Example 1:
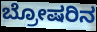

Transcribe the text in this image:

ಬ್ರೋಷರಿನ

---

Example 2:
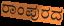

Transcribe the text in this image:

ರಾಂಪುರದ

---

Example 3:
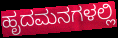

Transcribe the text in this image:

ಹೃದಮನಗಳಲ್ಲಿ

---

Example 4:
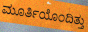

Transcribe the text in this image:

ಮೂರ್ತಿಯೊಂದಿತ್ತು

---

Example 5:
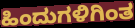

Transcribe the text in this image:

ಹಿಂದುಗಳಿಗಿಂತ